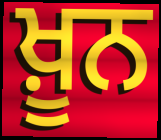
ਖ਼ੂਨ